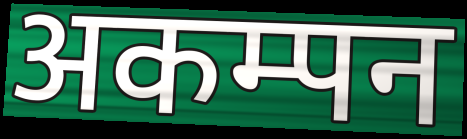
अकम्पन